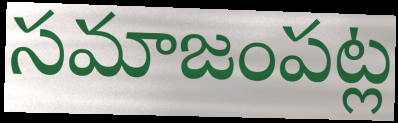
సమాజంపట్ల